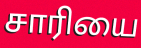
சாரியை